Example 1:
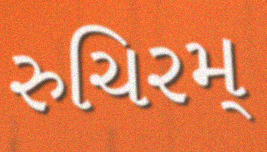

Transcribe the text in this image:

રુચિરમ્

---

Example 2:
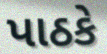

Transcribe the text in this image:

પાઠકે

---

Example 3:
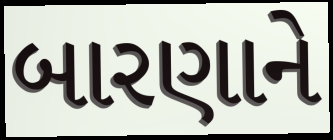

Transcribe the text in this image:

બારણાને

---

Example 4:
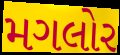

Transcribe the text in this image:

મગલોર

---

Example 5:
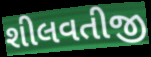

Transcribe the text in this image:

શીલવતીજી